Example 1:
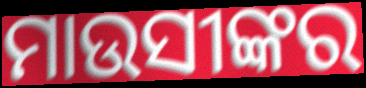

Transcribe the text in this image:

ମାଉସୀଙ୍କର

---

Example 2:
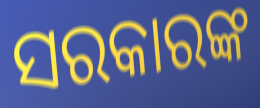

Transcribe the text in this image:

ସରକାରଙ୍କ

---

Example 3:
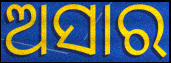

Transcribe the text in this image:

ଅସାର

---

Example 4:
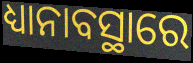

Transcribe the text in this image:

ଧ୍ୟାନାବସ୍ଥାରେ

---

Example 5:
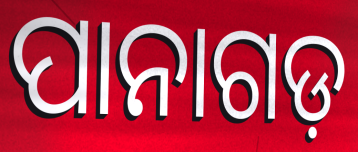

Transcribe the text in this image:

ପାନାଗଡ଼